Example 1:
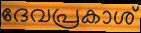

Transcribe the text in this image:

ദേവപ്രകാശ്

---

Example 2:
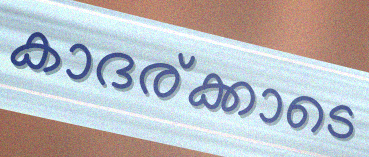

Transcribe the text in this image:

കാദര്ക്കാടെ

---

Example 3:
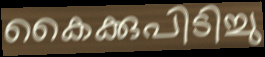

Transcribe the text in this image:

കൈക്കുപിടിച്ചു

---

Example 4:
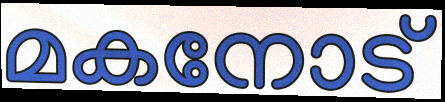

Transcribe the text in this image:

മകനോട്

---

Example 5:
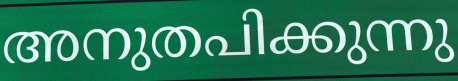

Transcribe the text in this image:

അനുതപിക്കുന്നു